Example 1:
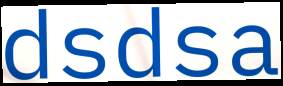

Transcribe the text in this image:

dsdsa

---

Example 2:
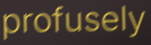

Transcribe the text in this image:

profusely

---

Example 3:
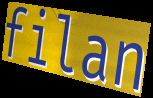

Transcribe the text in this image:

filan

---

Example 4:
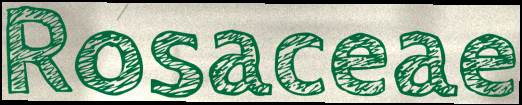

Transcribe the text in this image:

Rosaceae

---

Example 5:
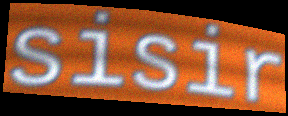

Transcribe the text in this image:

sisir